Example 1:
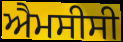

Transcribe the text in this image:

ਐਮਸੀਸੀ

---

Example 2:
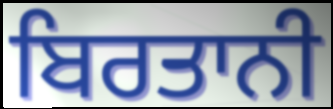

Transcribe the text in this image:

ਬਿਰਤਾਨੀ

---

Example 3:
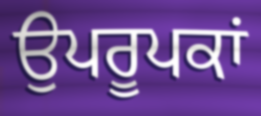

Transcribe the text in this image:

ਉਪਰੂਪਕਾਂ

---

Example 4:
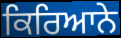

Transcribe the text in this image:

ਕਿਰਿਆਨੇ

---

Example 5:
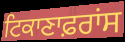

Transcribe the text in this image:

ਟਿਕਾਣਾਫ਼ਰਾਂਸ